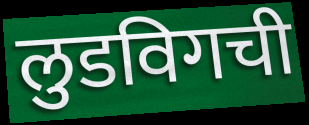
लुडविगची